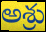
అశ్రు